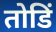
तोडिं